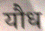
यौध